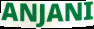
ANJANI